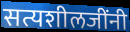
सत्यशीलजींनी